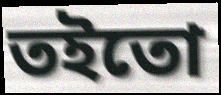
তইতো